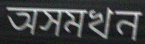
অসমখন